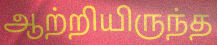
ஆற்றியிருந்த